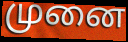
முனை